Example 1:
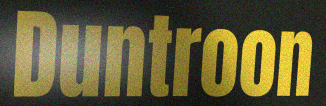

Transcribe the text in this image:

Duntroon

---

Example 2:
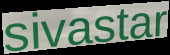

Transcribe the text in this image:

sivastar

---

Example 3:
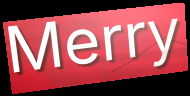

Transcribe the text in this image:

Merry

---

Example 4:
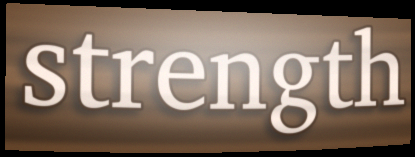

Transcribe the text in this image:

strength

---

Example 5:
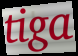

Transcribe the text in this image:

tiga